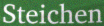
Steichen